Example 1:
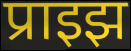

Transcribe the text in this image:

प्राइझ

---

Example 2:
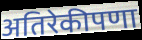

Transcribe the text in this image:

अतिरेकीपणा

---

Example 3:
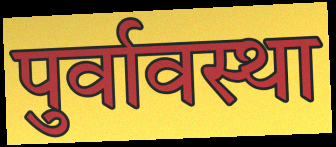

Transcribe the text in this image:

पुर्वावस्था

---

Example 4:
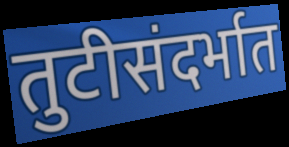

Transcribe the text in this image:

तुटीसंदर्भात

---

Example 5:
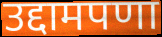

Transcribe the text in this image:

उद्दामपणा